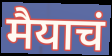
मैयाचं